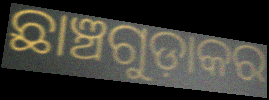
ଛାଞ୍ଚଗୁଡ଼ାକର